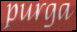
purga